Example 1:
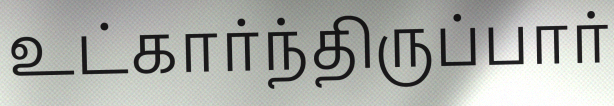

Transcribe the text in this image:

உட்கார்ந்திருப்பார்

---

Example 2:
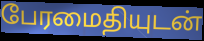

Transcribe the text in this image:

பேரமைதியுடன்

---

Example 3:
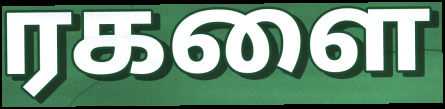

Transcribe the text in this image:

ரகளை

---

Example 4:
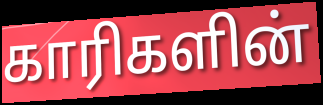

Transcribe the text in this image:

காரிகளின்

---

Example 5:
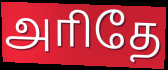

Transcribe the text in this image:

அரிதே